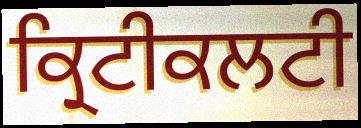
ਕ੍ਰਿਟੀਕਲਟੀ